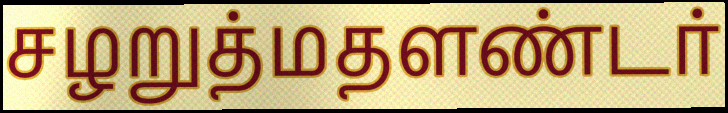
சழறுத்மதளண்டர்